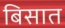
बिसात